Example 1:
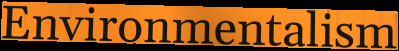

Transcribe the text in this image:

Environmentalism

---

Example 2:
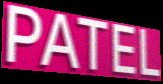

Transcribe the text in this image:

PATEL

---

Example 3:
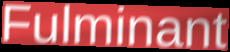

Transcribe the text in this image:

Fulminant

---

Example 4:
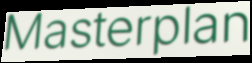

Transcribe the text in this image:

Masterplan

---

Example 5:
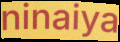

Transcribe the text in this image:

ninaiya